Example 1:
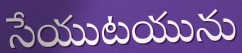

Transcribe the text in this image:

సేయుటయును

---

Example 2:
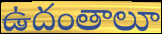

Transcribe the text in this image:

ఉదంతాలూ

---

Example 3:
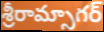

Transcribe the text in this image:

శ్రీరామ్సాగర్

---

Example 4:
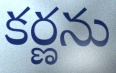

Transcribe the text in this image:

కర్ణను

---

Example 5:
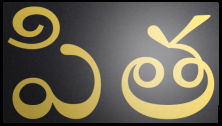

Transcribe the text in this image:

పిత